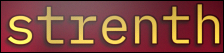
strenth